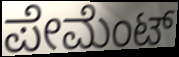
ಪೇಮೆಂಟ್